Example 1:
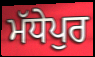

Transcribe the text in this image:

ਮੱਧੇਪੁਰ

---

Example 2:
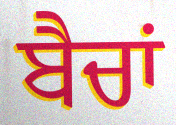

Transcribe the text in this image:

ਬੈਚਾਂ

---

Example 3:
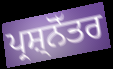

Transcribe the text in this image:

ਪ੍ਰਸ਼੍ਨੋੱਤਰ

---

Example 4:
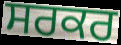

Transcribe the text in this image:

ਸਰਕਰ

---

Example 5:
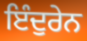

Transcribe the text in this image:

ਇੰਦੁਰੇਨ